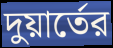
দুয়ার্তের